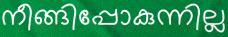
നീങ്ങിപ്പോകുന്നില്ല